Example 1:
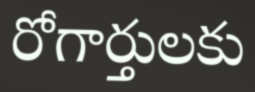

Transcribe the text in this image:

రోగార్తులకు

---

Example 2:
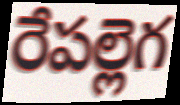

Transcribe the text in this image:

రేపల్లెగ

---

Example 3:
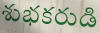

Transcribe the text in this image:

శుభకరుడి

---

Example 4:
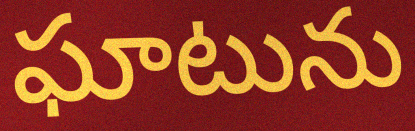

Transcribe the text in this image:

ఘాటును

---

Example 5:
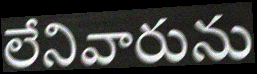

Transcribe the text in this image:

లేనివారును